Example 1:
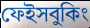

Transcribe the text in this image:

ফেইসবুকিং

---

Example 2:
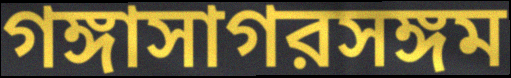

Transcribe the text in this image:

গঙ্গাসাগরসঙ্গম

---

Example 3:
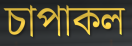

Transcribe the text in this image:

চাপাকল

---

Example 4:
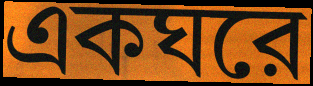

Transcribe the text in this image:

একঘরে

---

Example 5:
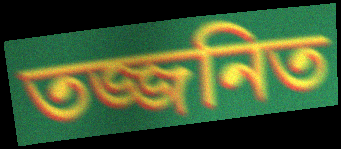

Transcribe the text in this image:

তজ্জনিত